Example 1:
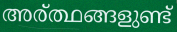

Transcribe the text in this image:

അര്ത്ഥങ്ങളുണ്ട്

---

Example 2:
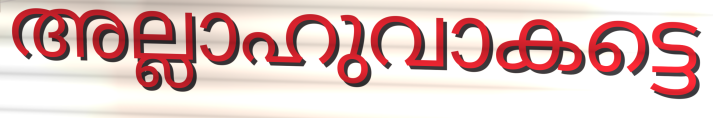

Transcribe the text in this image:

അല്ലാഹുവാകട്ടെ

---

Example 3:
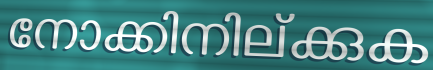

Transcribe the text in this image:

നോക്കിനില്ക്കുക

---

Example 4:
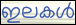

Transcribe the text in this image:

ഇലകൾ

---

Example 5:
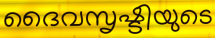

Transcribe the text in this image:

ദൈവസൃഷ്ടിയുടെ